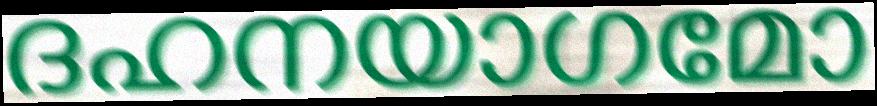
ദഹനയാഗമോ